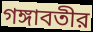
গঙ্গাবতীর